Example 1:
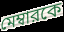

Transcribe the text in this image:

মেম্বারকে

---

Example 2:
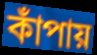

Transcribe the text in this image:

কাঁপায়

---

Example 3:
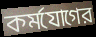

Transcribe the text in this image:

কর্মযোগের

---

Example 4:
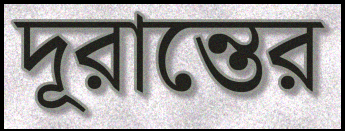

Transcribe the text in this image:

দূরান্তের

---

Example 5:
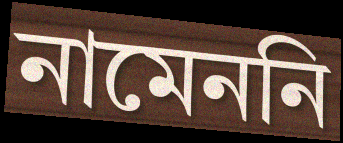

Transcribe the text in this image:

নামেননি